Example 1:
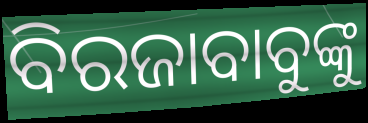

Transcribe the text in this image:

ବିରଜାବାବୁଙ୍କୁ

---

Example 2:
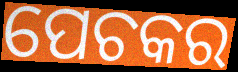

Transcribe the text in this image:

ପେଚକର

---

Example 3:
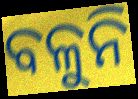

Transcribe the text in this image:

ବଳୁନି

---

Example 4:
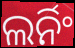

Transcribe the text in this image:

ଲର୍ନିଂ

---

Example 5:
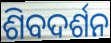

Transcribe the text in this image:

ଶିବଦର୍ଶନ